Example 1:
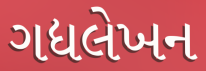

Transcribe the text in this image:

ગદ્યલેખન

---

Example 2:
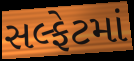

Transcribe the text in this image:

સલ્ફેટમાં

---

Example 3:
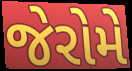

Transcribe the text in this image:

જેરોમે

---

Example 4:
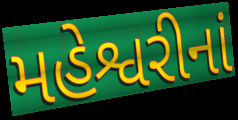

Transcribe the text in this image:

મહેશ્વરીનાં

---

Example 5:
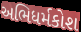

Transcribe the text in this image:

અભિધર્મકોશ